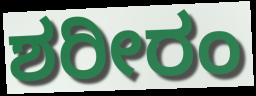
ಶರೀರಂ